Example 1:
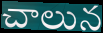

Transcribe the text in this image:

చాలున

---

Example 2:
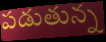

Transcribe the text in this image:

పడుతున్న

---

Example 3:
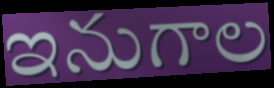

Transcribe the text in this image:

ఇనుగాల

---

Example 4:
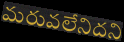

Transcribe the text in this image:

మరువలేనిదని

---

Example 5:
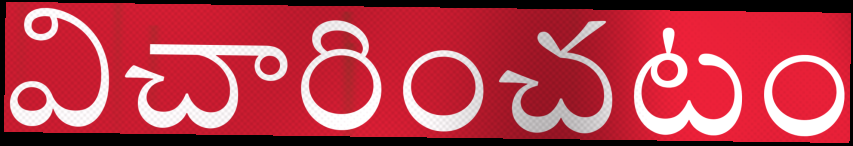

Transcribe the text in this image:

విచారించటం